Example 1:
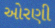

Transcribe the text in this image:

ઓરણી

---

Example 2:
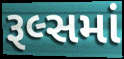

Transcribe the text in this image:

રૂલ્સમાં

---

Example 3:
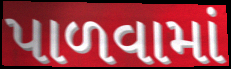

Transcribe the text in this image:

પાળવામાં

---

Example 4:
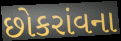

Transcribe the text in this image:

છોકરાંવના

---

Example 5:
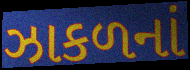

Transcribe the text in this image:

ઝાકળનાં